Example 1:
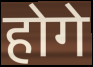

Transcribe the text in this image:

होगे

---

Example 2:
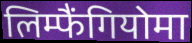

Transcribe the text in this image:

लिम्फैंगियोमा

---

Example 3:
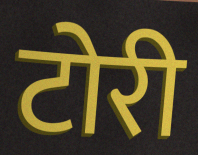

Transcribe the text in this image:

टोरी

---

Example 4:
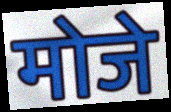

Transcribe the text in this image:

मोजे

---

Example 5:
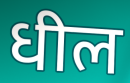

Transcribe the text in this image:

धील